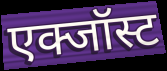
एक्जॉस्ट